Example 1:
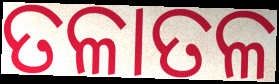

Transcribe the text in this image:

ତଳାତଳ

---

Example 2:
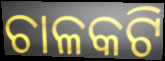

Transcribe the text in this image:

ଚାଳକଟି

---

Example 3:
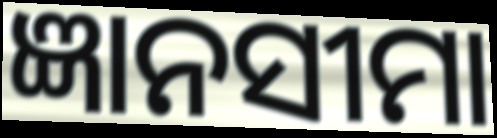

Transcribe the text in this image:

ଜ୍ଞାନସୀମା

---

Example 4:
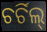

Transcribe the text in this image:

ଚର୍ଚିଲ୍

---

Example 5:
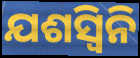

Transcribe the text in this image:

ଯଶସ୍ୱିନି